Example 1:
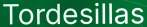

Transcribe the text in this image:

Tordesillas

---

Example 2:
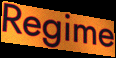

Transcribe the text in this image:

Regime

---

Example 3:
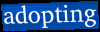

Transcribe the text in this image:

adopting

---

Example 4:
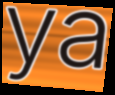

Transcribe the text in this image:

ya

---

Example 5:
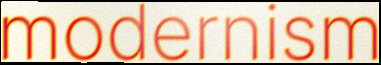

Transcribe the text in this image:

modernism